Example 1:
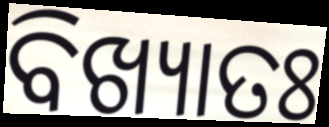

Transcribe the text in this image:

ବିଖ୍ୟାତଃ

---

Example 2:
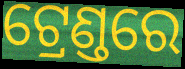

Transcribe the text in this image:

ଟ୍ରେଣ୍ଡରେ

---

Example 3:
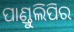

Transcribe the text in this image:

ପାଣ୍ଡୁଲିପିର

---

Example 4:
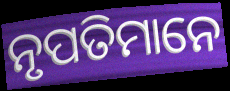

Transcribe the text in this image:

ନୃପତିମାନେ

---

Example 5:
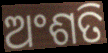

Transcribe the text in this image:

ଅଂଶତି